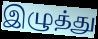
இழுத்து